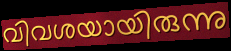
വിവശയായിരുന്നു